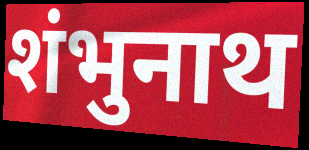
शंभुनाथ